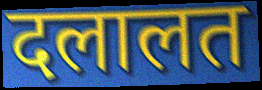
दलालत